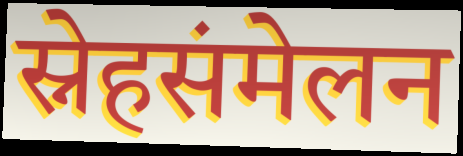
स्नेहसंमेलन